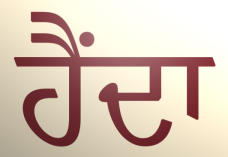
ਹੈਂਦਾ